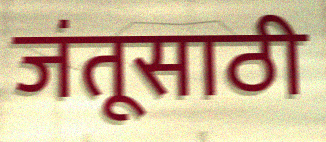
जंतूसाठी